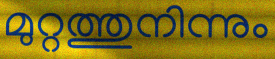
മുറ്റത്തുനിന്നും